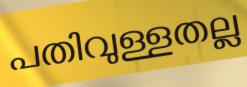
പതിവുള്ളതല്ല